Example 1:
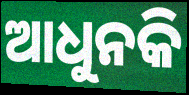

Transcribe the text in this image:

ଆଧୁନକି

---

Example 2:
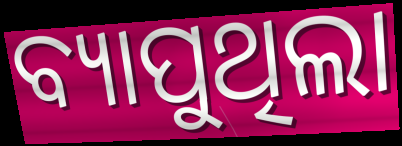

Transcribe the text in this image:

ବ୍ୟାପୁଥିଲା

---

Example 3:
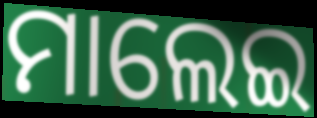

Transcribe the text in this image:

ମାଲେଇ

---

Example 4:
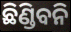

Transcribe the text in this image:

ଛିଣ୍ଡିବନି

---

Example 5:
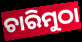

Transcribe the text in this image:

ଚାରିମୁଠା